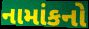
નામાંકનો